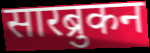
सारब्रुकन